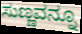
ಸುಣ್ಣವನ್ನೂ